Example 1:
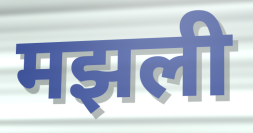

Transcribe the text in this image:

मझली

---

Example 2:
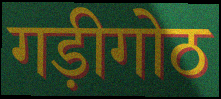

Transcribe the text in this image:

गड़ीगोठ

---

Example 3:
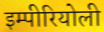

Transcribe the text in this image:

इम्पीरियोली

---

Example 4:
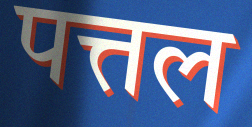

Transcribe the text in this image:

पत्तल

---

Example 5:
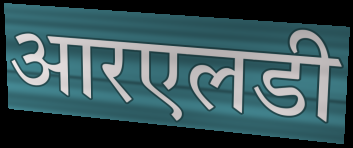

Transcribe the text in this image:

आरएलडी